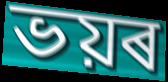
ভয়ৰ